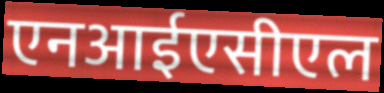
एनआईएसीएल